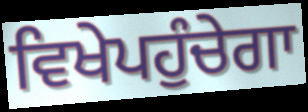
ਵਿਖੇਪਹੁੰਚੇਗਾ